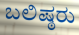
ಬಲಿಷ್ಠರು